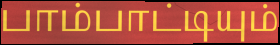
பாம்பாட்டியும்